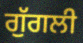
ਗੁੱਗਲੀ